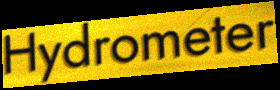
Hydrometer